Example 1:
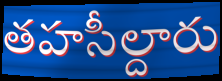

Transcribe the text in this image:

తహసీల్దారు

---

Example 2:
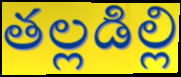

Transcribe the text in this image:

తల్లడిల్లి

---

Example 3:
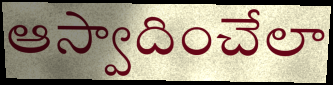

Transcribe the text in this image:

ఆస్వాదించేలా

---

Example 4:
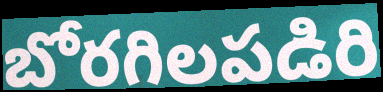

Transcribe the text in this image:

బోరగిలపడిరి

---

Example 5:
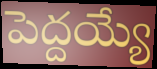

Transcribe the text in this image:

పెద్దయ్యే